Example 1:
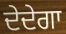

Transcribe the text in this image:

ਦੇਦੇਗਾ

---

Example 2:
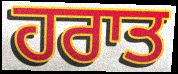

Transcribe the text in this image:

ਹਰਾਤ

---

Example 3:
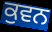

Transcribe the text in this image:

ਕੁਵਨ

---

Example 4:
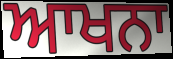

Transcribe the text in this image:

ਆਖਨਾ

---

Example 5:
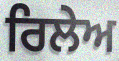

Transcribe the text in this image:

ਰਿਲੇਅ